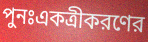
পুনঃএকত্রীকরণের